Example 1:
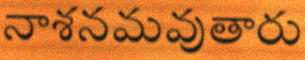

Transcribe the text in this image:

నాశనమవుతారు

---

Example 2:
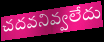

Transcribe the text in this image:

చదవనివ్వలేదు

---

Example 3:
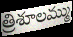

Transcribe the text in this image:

త్రిశూలమ్ము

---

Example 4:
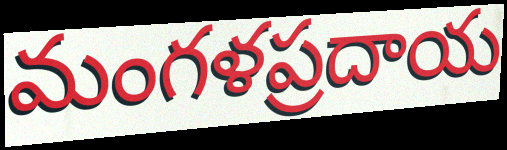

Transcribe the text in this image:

మంగళప్రదాయ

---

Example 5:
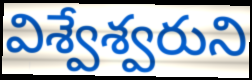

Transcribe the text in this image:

విశ్వేశ్వరుని